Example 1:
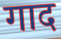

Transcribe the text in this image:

गाद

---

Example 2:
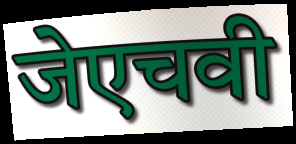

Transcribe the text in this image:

जेएचवी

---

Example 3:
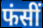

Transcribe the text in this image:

फंसीं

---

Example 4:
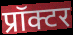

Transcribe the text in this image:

प्रॉक्टर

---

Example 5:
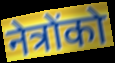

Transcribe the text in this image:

नेत्रोंको